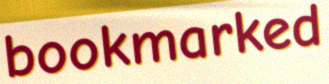
bookmarked